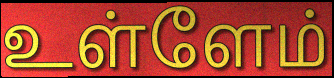
உள்ளேம்